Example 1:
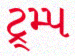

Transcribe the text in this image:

ટ્ર્મ્પ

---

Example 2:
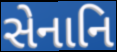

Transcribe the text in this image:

સેનાનિ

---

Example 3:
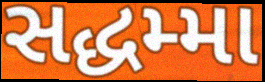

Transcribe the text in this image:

સદ્ધમ્મા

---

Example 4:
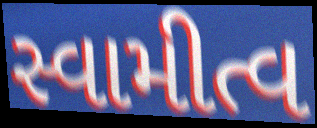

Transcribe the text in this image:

સ્વામીત્વ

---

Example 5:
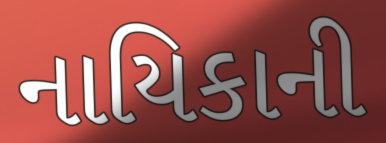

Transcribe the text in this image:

નાયિકાની